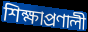
শিক্ষাপ্রণালী